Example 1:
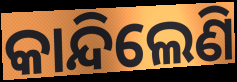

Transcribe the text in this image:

କାନ୍ଦିଲେଣି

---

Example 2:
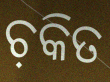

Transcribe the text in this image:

ଚ଼କିତ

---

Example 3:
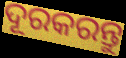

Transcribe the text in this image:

ଦୂରକରନ୍ତୁ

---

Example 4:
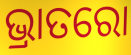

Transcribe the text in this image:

ଭ୍ରାତରୋ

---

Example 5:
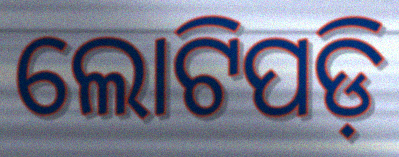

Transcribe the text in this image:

ଲୋଟିପଡ଼ି